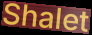
Shalet